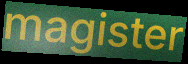
magister